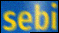
sebi